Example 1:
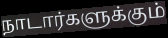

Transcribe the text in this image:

நாடார்களுக்கும்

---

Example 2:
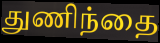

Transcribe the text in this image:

துணிந்தை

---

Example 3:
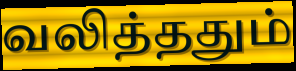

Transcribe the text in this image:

வலித்ததும்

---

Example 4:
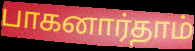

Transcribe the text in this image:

பாகனார்தாம்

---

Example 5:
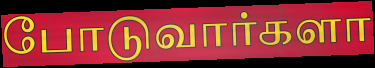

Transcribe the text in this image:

போடுவார்களா